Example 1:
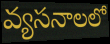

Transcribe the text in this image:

వ్యసనాలలో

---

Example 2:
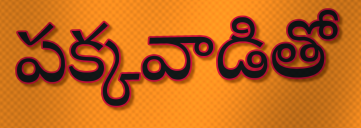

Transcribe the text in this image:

పక్కవాడితో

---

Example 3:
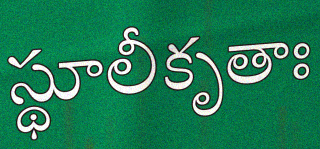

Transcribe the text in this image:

స్థూలీకృతాః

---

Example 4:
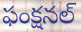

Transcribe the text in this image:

ఫంక్షనల్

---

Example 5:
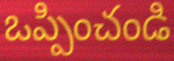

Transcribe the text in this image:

ఒప్పించండి